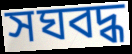
সঘবদ্ধ